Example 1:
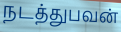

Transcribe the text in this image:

நடத்துபவன்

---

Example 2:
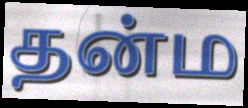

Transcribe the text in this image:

தன்ம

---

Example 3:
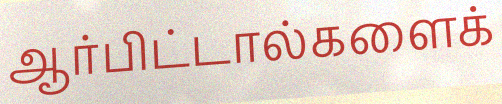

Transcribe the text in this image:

ஆர்பிட்டால்களைக்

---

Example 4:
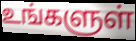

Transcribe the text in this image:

உங்களுள்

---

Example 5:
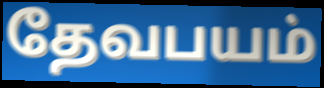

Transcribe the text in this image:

தேவபயம்